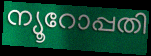
ന്യൂറോപ്പതി